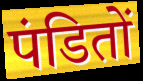
पंडितों